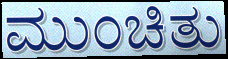
ಮುಂಚಿತು